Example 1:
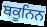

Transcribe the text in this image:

ਬਕੂਨਿਨ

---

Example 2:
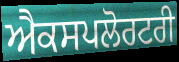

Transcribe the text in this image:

ਐਕਸਪਲੋਰਟਰੀ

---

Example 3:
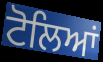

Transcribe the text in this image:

ਟੋਲਿਆਂ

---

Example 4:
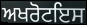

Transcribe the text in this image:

ਅਖਰੋਟਇਸ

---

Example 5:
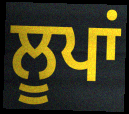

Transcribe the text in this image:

ਲੂਪਾਂ